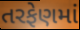
તરફેણમાં